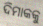
ଦିମାକକୁ